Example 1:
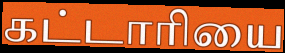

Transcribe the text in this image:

கட்டாரியை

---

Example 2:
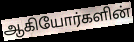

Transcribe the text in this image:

ஆகியோர்களின்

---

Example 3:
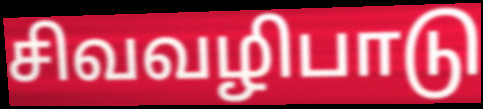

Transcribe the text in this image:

சிவவழிபாடு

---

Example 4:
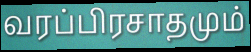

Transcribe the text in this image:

வரப்பிரசாதமும்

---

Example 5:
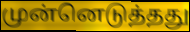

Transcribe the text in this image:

முன்னெடுத்தது